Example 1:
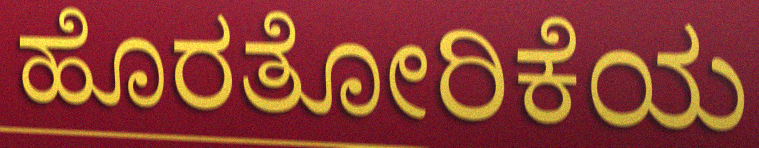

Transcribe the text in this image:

ಹೊರತೋರಿಕೆಯ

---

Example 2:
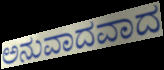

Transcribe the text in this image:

ಅನುವಾದವಾದ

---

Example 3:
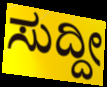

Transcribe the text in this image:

ಸುದ್ದೀ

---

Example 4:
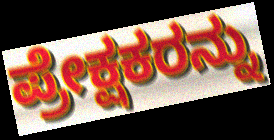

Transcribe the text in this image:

ಪ್ರೇಕ್ಷಕರನ್ನು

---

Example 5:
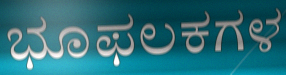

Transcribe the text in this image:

ಭೂಫಲಕಗಳ